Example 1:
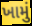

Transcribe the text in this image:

ખામું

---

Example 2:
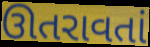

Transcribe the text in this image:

ઊતરાવતાં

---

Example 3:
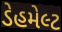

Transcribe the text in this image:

ડેહમેલ્ટ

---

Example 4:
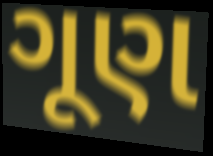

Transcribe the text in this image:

ગૂણ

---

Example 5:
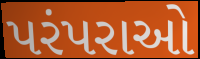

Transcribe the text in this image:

પરંપરાઓ